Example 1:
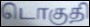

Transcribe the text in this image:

டொகுதி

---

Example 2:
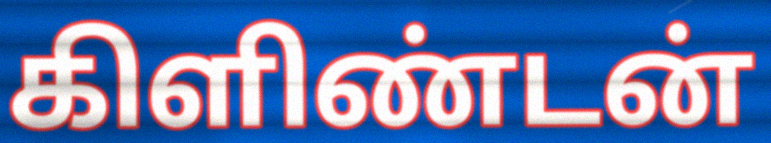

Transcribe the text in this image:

கிளிண்டன்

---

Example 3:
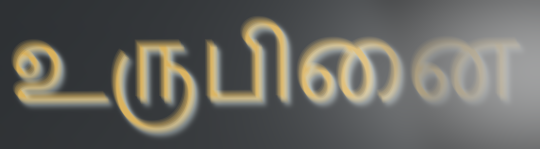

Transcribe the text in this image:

உருபினை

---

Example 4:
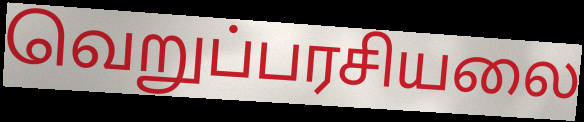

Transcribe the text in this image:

வெறுப்பரசியலை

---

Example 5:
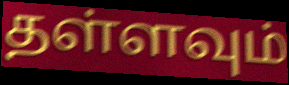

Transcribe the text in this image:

தள்ளவும்